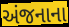
અંજનાના